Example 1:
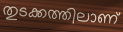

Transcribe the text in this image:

തുടക്കത്തിലാണ്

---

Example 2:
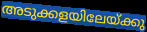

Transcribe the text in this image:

അടുക്കളയിലേയ്ക്കു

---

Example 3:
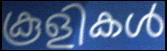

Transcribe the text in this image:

കൂളികൾ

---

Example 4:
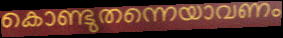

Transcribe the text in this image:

കൊണ്ടുതന്നെയാവണം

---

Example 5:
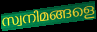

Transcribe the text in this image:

സ്വനിമങ്ങളെ